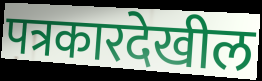
पत्रकारदेखील